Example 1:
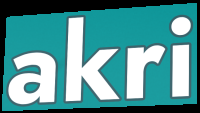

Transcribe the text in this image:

akri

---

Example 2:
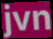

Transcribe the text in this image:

jvn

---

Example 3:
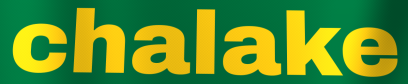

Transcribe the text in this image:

chalake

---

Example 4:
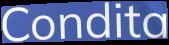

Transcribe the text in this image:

Condita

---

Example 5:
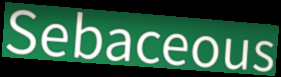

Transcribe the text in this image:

Sebaceous